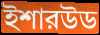
ইশারউড